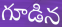
గూడిన